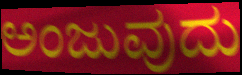
ಅಂಜುವುದು